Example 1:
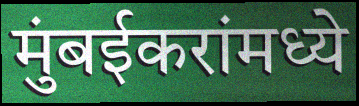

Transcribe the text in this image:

मुंबईकरांमध्ये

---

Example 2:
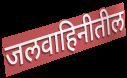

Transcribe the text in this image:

जलवाहिनीतील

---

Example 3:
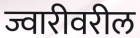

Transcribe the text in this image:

ज्वारीवरील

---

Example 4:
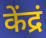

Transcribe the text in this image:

केंद्रं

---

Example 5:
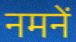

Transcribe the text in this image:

नमनें